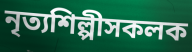
নৃত্যশিল্পীসকলক